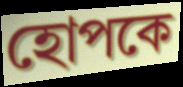
হোপকে